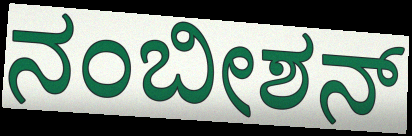
ನಂಬೀಶನ್